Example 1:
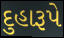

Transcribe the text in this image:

દુહારૂપે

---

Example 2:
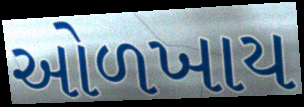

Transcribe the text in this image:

ઓળખાય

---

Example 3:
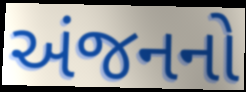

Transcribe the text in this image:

અંજનનો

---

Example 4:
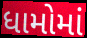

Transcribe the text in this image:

ધામોમાં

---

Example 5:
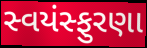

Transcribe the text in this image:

સ્વયંસ્ફુરણા